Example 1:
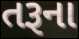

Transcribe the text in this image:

તરૂના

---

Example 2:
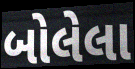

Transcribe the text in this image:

બોલેલા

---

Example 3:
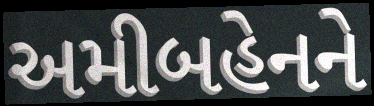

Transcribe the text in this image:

અમીબહેનને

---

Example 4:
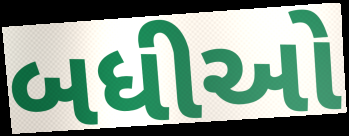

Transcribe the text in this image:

બધીઓ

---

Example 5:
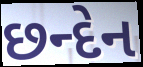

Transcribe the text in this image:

છન્દેન